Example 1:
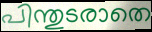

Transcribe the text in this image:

പിന്തുടരാതെ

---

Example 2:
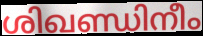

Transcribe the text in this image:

ശിഖണ്ഡിനീം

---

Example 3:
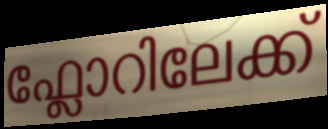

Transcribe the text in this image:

ഫ്ലോറിലേക്ക്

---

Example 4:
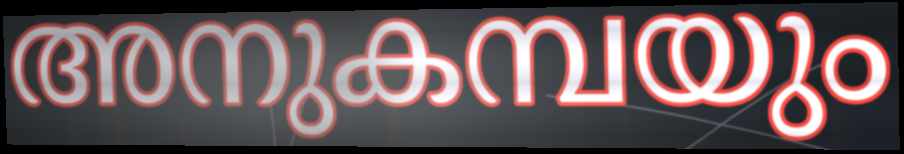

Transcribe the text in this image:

അനുകമ്പയും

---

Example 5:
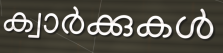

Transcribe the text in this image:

ക്വാർക്കുകൾ